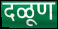
दळूण